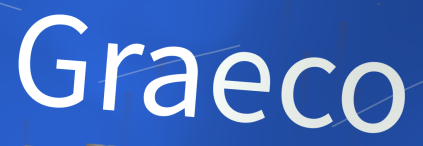
Graeco